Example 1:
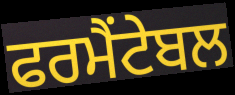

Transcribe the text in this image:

ਫਰਮੈਂਟੇਬਲ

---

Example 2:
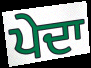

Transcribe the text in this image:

ਪੇਦਾ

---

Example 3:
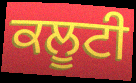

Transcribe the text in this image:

ਕਲੂਟੀ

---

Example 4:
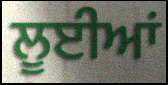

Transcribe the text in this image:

ਲੂਈਆਂ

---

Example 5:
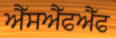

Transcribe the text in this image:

ਐੱਸਐੱਫਐੱਫ